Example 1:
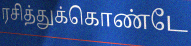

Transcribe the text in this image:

ரசித்துக்கொண்டே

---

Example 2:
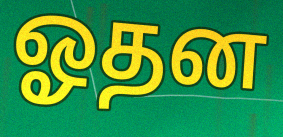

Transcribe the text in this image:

ஓதன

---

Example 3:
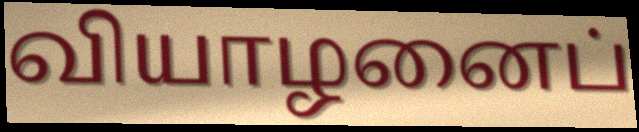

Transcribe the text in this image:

வியாழனைப்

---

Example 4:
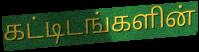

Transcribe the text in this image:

கட்டிடங்களின்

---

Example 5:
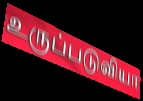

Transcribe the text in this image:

உருப்படுவியா